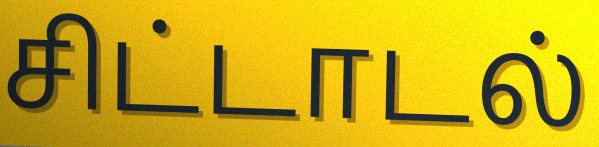
சிட்டாடல்